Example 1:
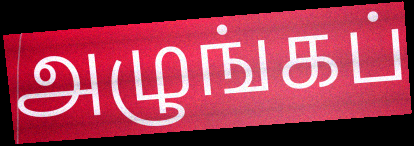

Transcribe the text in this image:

அழுங்கப்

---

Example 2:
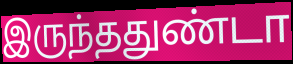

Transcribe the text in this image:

இருந்ததுண்டா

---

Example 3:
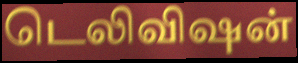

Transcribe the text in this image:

டெலிவிஷன்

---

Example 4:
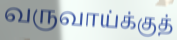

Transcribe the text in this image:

வருவாய்க்குத்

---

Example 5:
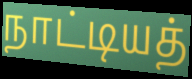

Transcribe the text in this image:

நாட்டியத்